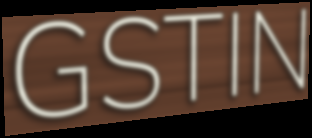
GSTIN